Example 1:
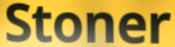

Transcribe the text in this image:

Stoner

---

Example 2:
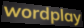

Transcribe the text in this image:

wordplay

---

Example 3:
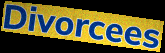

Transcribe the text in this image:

Divorcees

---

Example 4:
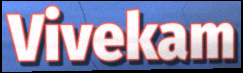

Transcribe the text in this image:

Vivekam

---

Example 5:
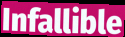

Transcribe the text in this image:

Infallible